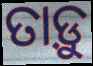
ତାଡ଼ୁ